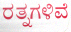
ರತ್ನಗಳಿವೆ